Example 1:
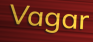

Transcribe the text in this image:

Vagar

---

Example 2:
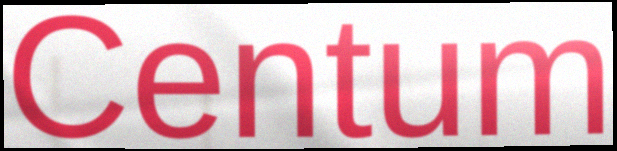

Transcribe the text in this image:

Centum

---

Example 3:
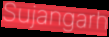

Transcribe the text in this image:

Sujangarh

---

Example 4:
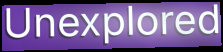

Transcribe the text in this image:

Unexplored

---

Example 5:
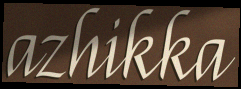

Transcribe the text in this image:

azhikka